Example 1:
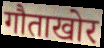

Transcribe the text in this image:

गौताखोर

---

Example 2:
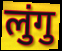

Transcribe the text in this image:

लुंगु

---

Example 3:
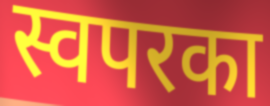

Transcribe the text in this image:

स्वपरका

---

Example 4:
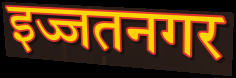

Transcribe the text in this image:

इज्जतनगर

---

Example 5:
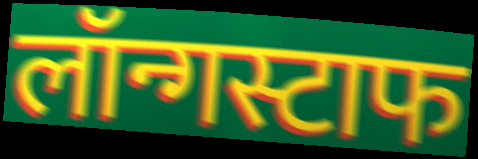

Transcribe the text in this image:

लॉन्गस्टाफ